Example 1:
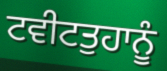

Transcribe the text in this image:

ਟਵੀਟਤੁਹਾਨੂੰ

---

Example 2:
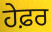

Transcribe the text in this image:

ਹੇਫ਼ਰ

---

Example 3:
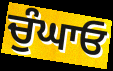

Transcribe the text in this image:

ਚੁੰਘਾਓ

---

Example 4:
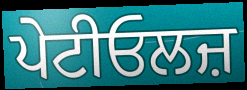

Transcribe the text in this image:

ਪੇਟੀਓਲਜ਼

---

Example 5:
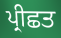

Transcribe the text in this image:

ਪ੍ਰੀਛਤ